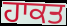
ਹਾਕਤ